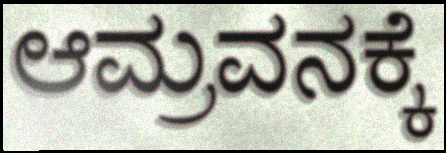
ಆಮ್ರವನಕ್ಕೆ